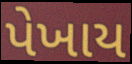
પેખાય